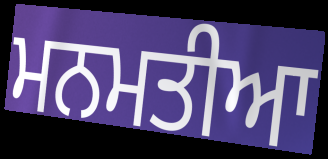
ਮਨਮਤੀਆ